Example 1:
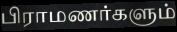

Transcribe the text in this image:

பிராமணர்களும்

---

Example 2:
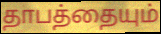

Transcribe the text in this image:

தாபத்தையும்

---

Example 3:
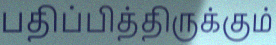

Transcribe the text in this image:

பதிப்பித்திருக்கும்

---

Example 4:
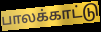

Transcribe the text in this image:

பாலக்காட்டு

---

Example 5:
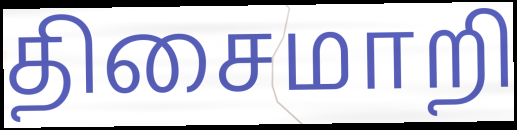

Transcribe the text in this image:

திசைமாறி